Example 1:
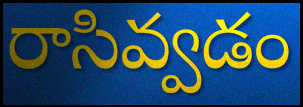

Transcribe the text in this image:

రాసివ్వడం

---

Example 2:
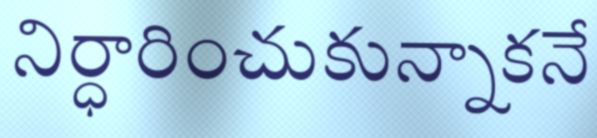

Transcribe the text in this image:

నిర్ధారించుకున్నాకనే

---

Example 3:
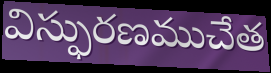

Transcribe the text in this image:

విస్ఫురణముచేత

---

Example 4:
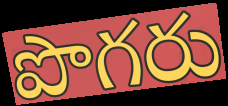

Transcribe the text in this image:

పొగరు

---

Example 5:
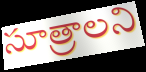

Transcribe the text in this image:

సూత్రాలని